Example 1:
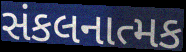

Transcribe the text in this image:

સંકલનાત્મક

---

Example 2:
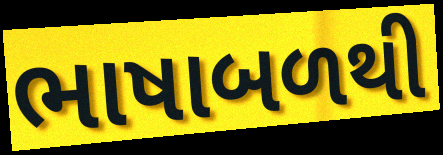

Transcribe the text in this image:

ભાષાબળથી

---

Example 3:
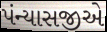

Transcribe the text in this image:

પંન્યાસજીએ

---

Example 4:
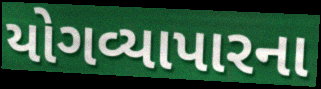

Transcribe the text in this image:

યોગવ્યાપારના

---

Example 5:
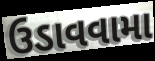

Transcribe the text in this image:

ઉડાવવામા